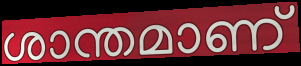
ശാന്തമാണ്